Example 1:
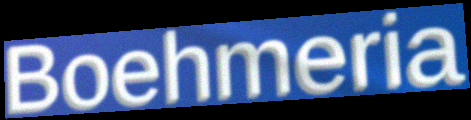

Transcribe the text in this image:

Boehmeria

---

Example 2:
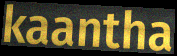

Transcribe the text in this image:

kaantha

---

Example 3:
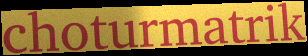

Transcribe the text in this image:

choturmatrik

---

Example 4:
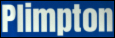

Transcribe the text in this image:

Plimpton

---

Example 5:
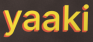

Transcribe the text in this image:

yaaki